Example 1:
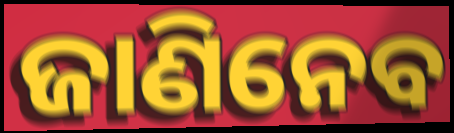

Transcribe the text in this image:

ଜାଣିନେବ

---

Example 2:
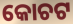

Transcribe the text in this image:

କୋଚଟ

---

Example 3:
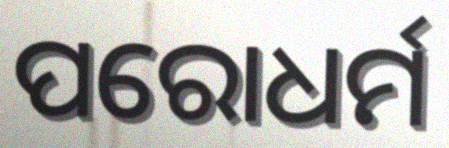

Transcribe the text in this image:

ପରୋଧର୍ମ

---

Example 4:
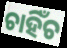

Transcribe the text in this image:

ଚାହିଁଚ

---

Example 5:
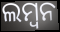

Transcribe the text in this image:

ଲମ୍ବନ